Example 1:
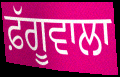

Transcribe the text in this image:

ਫ਼ੱਗੂਵਾਲਾ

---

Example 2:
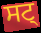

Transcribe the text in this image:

ਸਟ੍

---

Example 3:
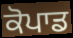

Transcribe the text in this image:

ਕੋਪਾਡ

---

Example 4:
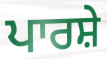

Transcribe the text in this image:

ਪਾਰਸ਼ੇ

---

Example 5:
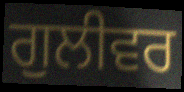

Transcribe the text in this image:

ਗੁਲੀਵਰ